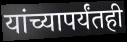
यांच्यापर्यंतही